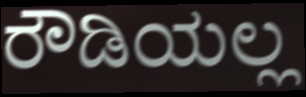
ರೌಡಿಯಲ್ಲ